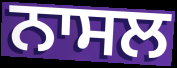
ਨਾਸਲ